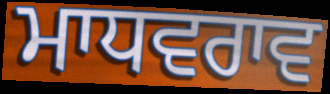
ਮਾਧਵਰਾਵ